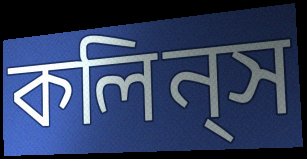
কলিন্‌স